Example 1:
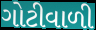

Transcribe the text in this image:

ગોટીવાળી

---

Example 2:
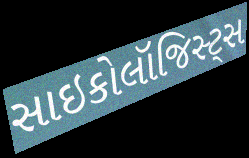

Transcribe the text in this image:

સાઇકોલૉજિસ્ટ્સ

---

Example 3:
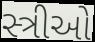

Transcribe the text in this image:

સ્ત્રીઓ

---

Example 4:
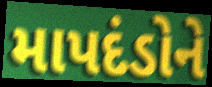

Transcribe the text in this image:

માપદંડોને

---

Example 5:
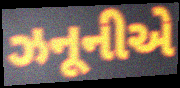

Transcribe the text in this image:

ઝનૂનીએ